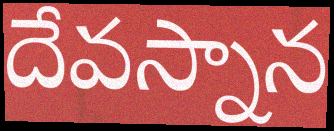
దేవస్నాన